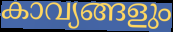
കാവ്യങ്ങളും